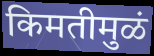
किमतीमुळं